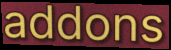
addons